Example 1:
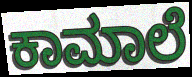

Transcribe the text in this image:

ಕಾಮಾಲೆ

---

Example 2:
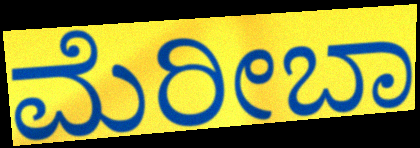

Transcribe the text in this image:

ಮೆರೀಬಾ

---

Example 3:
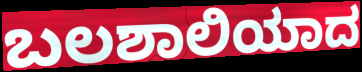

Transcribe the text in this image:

ಬಲಶಾಲಿಯಾದ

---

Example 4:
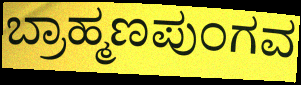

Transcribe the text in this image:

ಬ್ರಾಹ್ಮಣಪುಂಗವ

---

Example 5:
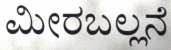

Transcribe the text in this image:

ಮೀರಬಲ್ಲನೆ